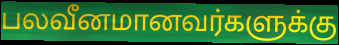
பலவீனமானவர்களுக்கு